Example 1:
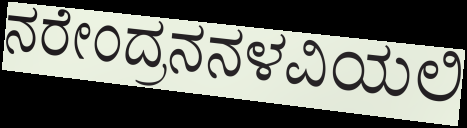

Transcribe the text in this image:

ನರೇಂದ್ರನನಳವಿಯಲಿ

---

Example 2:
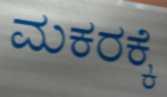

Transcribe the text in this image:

ಮಕರಕ್ಕೆ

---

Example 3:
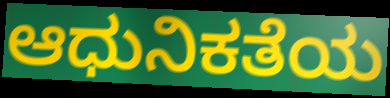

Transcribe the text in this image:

ಆಧುನಿಕತೆಯ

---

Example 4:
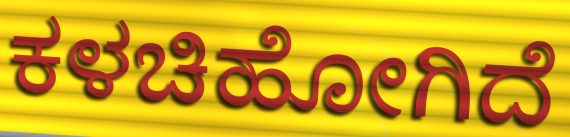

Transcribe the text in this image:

ಕಳಚಿಹೋಗಿದೆ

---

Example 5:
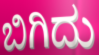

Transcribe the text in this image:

ಬಿಗಿದು